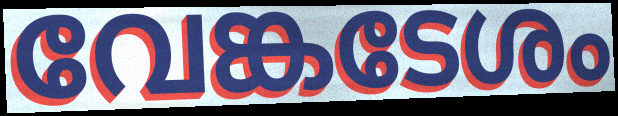
വേങ്കടേശം